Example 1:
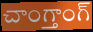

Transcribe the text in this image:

చాంగ్తాంగ్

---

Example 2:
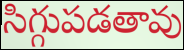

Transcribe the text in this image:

సిగ్గుపడతావు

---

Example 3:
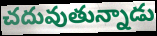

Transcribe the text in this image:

చదువుతున్నాడు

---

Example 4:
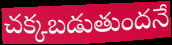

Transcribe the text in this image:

చక్కబడుతుందనే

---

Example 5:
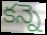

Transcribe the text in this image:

కన్నె